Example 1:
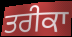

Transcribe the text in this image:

ਤਰੀਕਾ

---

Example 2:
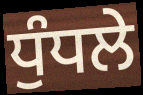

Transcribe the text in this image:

ਧੁੰਧਲੇ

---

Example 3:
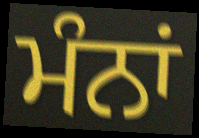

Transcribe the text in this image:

ਮੰਨਾਂ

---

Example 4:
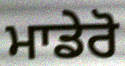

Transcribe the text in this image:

ਮਾਡੇਰੋ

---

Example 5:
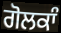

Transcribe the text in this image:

ਗੋਲਕਾੰ